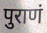
पुराणं